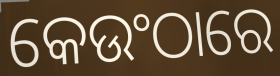
କେଉଂଠାରେ